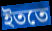
ইততে